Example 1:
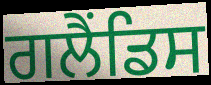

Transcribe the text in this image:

ਗਲੈਂਡਿਸ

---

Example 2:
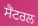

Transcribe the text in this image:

ਸੈਂਟਰਲ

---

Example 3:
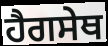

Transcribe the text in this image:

ਹੈਗਸੇਥ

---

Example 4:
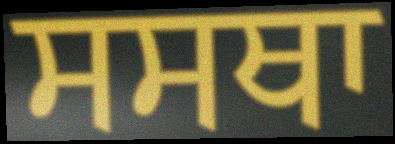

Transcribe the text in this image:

ਸਸਥਾ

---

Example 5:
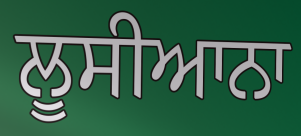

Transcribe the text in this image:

ਲੂਸੀਆਨਾ